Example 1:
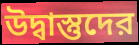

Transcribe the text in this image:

উদ্বাস্তুদের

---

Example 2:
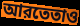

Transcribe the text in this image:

আরতেতাও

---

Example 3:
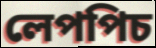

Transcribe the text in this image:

লেপপিচ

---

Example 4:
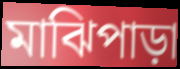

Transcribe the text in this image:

মাঝিপাড়া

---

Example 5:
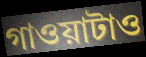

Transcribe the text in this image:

গাওয়াটাও